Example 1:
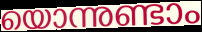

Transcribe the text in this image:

യൊന്നുണ്ടാം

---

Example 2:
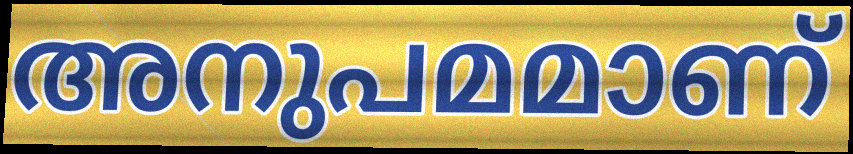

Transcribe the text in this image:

അനുപമമാണ്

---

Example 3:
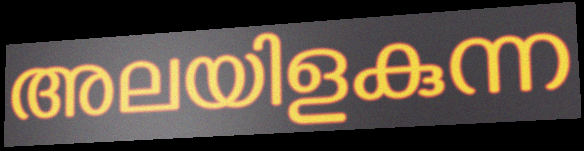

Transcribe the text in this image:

അലയിളകുന്ന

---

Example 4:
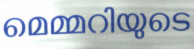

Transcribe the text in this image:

മെമ്മറിയുടെ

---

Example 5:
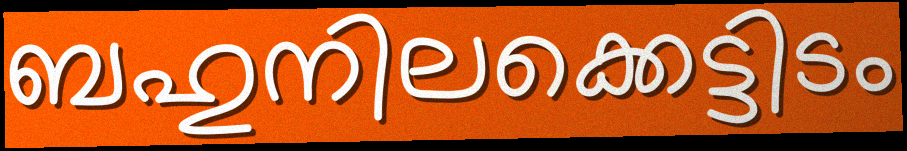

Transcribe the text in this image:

ബഹുനിലക്കെട്ടിടം